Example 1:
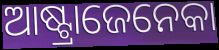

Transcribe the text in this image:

ଆଷ୍ଟ୍ରାଜେନେକା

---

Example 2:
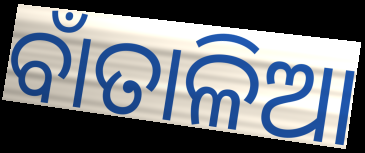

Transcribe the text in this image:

ବାଁତାଳିଆ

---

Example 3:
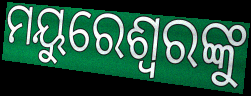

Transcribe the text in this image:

ମୟୁରେଶ୍ବରଙ୍କୁ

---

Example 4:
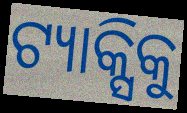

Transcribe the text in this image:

ଟ୍ୟାକ୍ସିକୁ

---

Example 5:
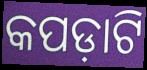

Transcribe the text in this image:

କପଡ଼ାଟି